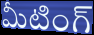
మీటింగ్